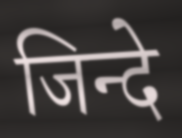
जिन्दे